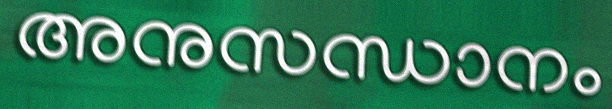
അനുസന്ധാനം